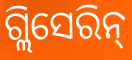
ଗ୍ଲିସେରିନ୍